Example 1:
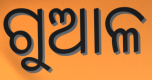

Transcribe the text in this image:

ଗୁଆଳ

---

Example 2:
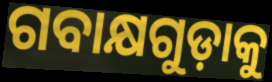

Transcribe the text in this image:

ଗବାକ୍ଷଗୁଡ଼ାକୁ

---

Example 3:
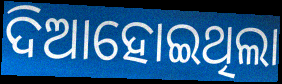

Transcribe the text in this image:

ଦିଆହୋଇଥିଲା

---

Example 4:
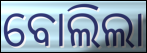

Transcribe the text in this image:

ବୋଲିଲା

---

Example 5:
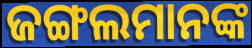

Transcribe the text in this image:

ଜଙ୍ଗଲମାନଙ୍କ